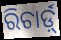
ରିଚାର୍ଡ଼୍